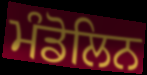
ਮੰਡੋਲਿਨ